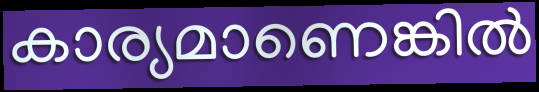
കാര്യമാണെങ്കിൽ